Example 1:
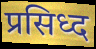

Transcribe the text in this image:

प्रसिध्द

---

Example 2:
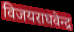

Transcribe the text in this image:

विजयराघवेन्द्र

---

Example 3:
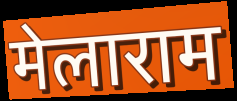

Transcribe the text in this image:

मेलाराम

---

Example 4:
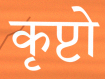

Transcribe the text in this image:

कृप्टो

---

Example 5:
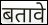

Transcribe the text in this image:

बतावे